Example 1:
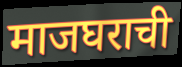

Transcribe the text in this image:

माजघराची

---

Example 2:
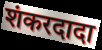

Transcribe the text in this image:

शंकरदादा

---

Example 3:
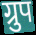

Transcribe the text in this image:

ग्रुप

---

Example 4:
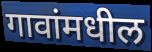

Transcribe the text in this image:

गावांमधील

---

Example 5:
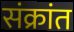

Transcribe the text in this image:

संक्रांत